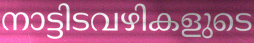
നാട്ടിടവഴികളുടെ